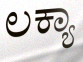
ಲಕ್ಯಾ